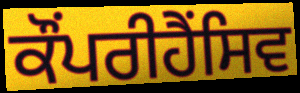
ਕੌਂਪਰੀਹੈਂਸਿਵ